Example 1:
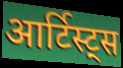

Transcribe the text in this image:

आर्टिस्ट्स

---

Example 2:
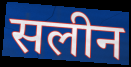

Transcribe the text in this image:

सलीन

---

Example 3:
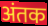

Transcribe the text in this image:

अंतक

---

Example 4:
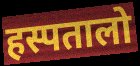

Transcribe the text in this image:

हस्पतालो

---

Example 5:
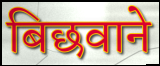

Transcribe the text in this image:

बिछवाने